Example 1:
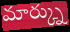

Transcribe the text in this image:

మార్క్ను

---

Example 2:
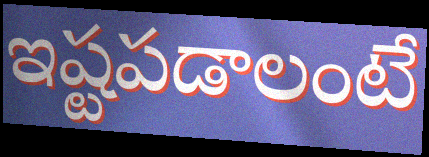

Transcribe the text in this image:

ఇష్టపడాలంటే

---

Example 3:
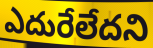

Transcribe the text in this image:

ఎదురేలేదని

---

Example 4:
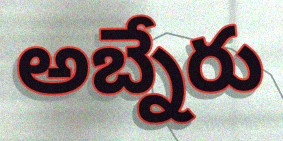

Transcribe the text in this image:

అబ్నేరు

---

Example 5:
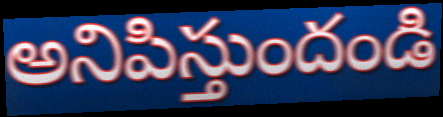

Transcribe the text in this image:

అనిపిస్తుందండి